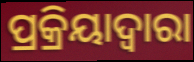
ପ୍ରକ୍ରିୟାଦ୍ଵାରା